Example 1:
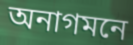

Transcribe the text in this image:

অনাগমনে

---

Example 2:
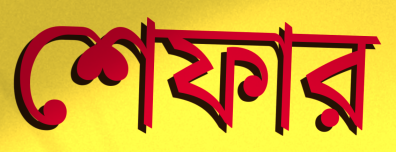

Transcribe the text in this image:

শেফার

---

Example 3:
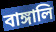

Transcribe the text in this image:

বাঙ্গালি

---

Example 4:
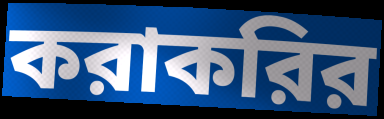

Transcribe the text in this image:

করাকরির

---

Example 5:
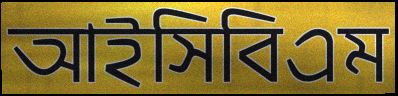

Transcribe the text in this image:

আইসিবিএম